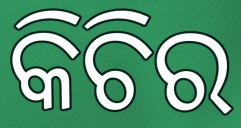
କିଚିର